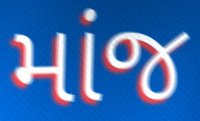
માંજ